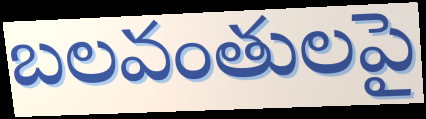
బలవంతులపై